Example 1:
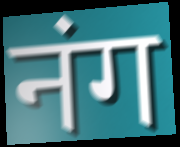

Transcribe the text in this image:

नंग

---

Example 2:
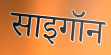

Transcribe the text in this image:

साइगॉन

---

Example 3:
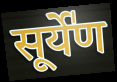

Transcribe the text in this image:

सूर्ये॑ण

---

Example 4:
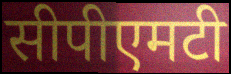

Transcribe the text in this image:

सीपीएमटी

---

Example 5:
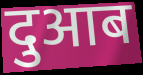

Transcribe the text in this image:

दुआब